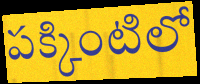
పక్కింటిలో